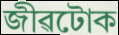
জীৱটোক